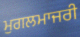
ਮੁਗਲਮਾਜਰੀ